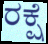
ರಕ್ಷೆ